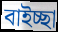
বাইচ্ছা